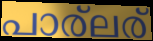
പാര്ലര്